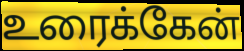
உரைக்கேன்